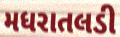
મધરાતલડી